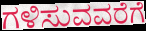
ಗಳಿಸುವವರೆಗೆ